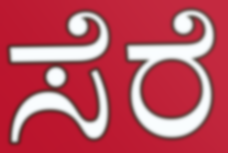
ಸೆರೆ